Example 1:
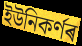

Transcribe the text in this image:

ইউনিকৰ্ণৰ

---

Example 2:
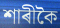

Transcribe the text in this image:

শাৰীকৈ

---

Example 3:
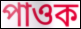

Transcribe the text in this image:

পাওক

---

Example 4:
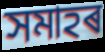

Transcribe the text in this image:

সমাহৰ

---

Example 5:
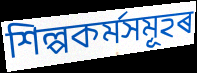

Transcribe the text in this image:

শিল্পকৰ্মসমূহৰ